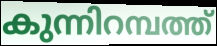
കുന്നിറമ്പത്ത്